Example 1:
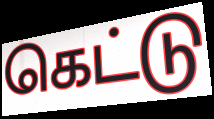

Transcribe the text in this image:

கெட்டு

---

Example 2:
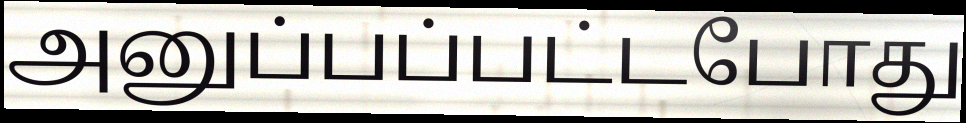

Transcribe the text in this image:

அனுப்பப்பட்டபோது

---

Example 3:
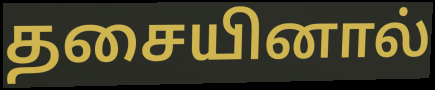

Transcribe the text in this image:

தசையினால்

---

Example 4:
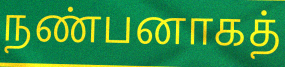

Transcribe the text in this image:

நண்பனாகத்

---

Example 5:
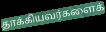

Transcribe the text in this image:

தாக்கியவர்களைக்